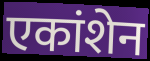
एकांशेन